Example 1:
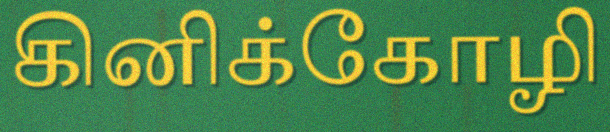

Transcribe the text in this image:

கினிக்கோழி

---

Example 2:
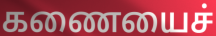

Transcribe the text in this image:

கணையைச்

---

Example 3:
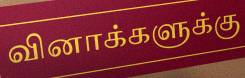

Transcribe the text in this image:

வினாக்களுக்கு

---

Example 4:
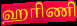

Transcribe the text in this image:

ஹரிணி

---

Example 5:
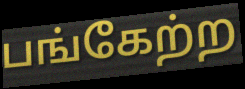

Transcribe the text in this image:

பங்கேற்ற